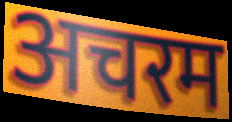
अचरम